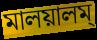
মালয়ালম্